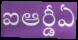
ఐఆర్డీఏ